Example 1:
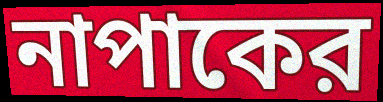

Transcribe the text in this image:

নাপাকের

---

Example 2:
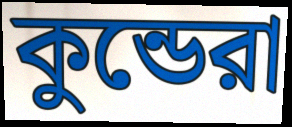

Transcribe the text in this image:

কুন্ডেরা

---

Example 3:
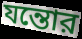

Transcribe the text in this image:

যন্তোর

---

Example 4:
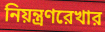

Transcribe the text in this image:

নিয়ন্ত্রণরেখার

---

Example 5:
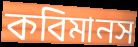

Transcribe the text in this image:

কবিমানস